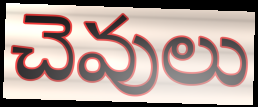
చెవులు